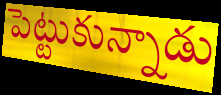
పెట్టుకున్నాడు